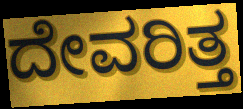
ದೇವರಿತ್ತ